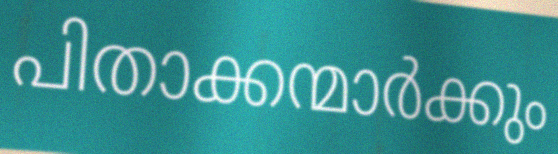
പിതാക്കന്മാർക്കും